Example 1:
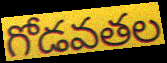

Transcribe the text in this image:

గోడవతల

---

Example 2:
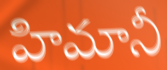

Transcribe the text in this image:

హిమానీ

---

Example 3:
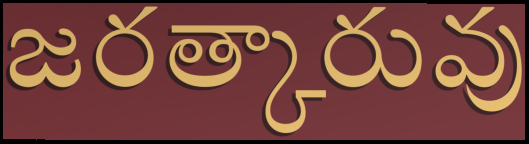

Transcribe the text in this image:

జరత్కారువు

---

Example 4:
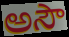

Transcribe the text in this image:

అసౌ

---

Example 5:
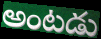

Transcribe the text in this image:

అంటడు